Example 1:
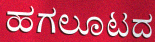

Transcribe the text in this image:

ಹಗಲೂಟದ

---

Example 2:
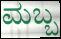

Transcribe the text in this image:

ಮಬ್ಬ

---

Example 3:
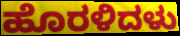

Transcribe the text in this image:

ಹೊರಳಿದಳು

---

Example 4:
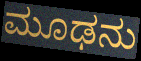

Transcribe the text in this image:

ಮೂಢನು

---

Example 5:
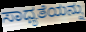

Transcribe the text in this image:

ಸಾಧ್ಯತೆಯನ್ನು